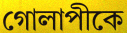
গোলাপীকে